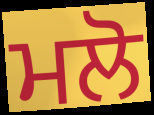
ਮਲੋ